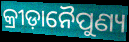
କ୍ରୀଡ଼ାନୈପୁଣ୍ୟ